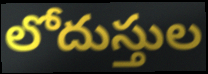
లోదుస్తుల